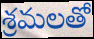
శ్రమలతో